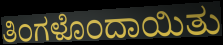
ತಿಂಗಳೊಂದಾಯಿತು